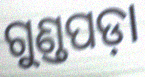
ଗୁଣ୍ଡପଡ଼ା